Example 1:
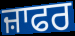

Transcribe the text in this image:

ਜ਼ਾਫਰ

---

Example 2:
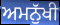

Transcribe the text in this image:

ਅਮਨੁੱਖੀ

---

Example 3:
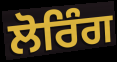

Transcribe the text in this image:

ਲੋਰਿੰਗ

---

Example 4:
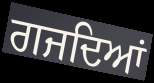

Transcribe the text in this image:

ਗਜਦਿਆਂ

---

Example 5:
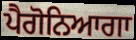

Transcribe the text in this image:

ਪੈਗੋਨਿਆਗਾ